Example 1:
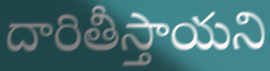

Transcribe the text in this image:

దారితీస్తాయని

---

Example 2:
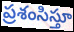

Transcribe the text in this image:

ప్రశంసిస్తూ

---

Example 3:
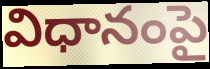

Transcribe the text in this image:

విధానంపై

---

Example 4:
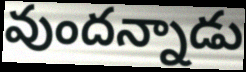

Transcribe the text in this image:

వుందన్నాడు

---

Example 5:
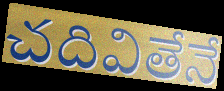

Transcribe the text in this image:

చదివితేనే